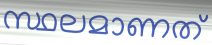
സ്ഥലമാണത്